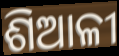
ଶିଆଳୀ